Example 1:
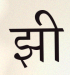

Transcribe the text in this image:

झी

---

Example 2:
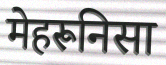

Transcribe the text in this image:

मेहरूनिसा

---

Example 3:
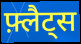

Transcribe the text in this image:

फ़्लैट्स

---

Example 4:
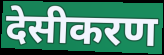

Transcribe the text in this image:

देसीकरण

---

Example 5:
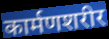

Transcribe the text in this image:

कार्मणशरीर